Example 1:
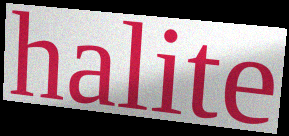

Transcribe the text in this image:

halite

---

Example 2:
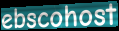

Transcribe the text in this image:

ebscohost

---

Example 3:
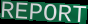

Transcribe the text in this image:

REPORT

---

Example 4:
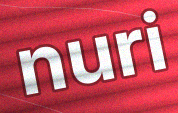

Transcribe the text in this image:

nuri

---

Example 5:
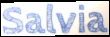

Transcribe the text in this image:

Salvia